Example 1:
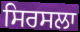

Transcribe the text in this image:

ਸਿਰਸਲਾ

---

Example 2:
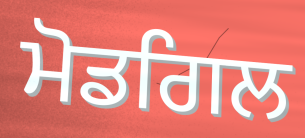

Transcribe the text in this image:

ਮੋਡਗਿਲ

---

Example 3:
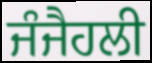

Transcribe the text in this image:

ਜੰਜੈਹਲੀ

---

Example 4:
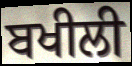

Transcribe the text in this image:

ਬਖੀਲੀ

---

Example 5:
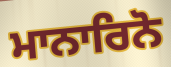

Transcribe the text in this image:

ਮਾਨਾਰਿਨੋ